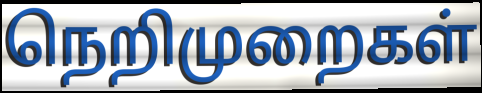
நெறிமுறைகள்